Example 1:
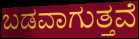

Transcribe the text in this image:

ಬಡವಾಗುತ್ತವೆ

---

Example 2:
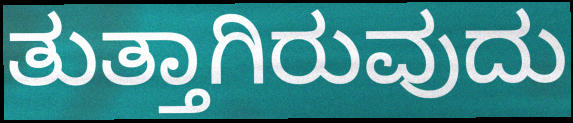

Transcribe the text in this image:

ತುತ್ತಾಗಿರುವುದು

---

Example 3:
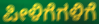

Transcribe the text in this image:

ಪೀಳಿಗೆಗಳಿಗೆ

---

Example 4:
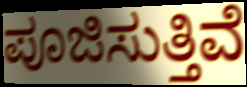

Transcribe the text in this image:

ಪೂಜಿಸುತ್ತಿವೆ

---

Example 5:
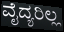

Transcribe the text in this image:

ವೈದ್ಯರಿಲ್ಲ